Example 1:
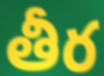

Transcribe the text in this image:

తీర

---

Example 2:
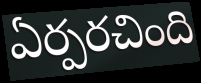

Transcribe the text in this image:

ఏర్పరచింది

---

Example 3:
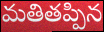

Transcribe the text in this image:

మతితప్పిన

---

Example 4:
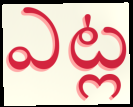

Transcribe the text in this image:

ఎట్ల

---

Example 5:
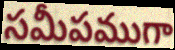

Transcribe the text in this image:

సమీపముగా